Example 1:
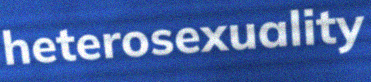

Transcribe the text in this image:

heterosexuality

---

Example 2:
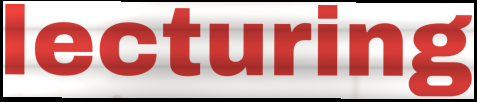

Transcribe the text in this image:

lecturing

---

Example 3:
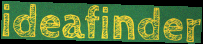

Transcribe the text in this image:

ideafinder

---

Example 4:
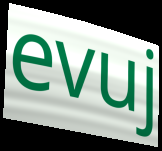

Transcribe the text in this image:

evuj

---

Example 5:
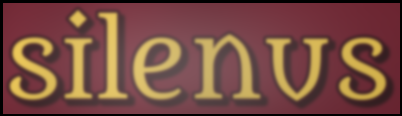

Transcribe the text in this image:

silenus